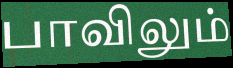
பாவிலும்